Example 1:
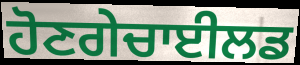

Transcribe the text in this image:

ਹੋਣਗੇਚਾਈਲਡ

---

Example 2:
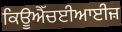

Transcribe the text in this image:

ਕਿਊਐੱਚਈਆਈਜ਼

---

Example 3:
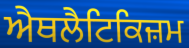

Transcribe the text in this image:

ਐਥਲੈਟਿਕਿਜ਼ਮ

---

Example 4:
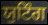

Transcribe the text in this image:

ਯੁਟਿੰਗ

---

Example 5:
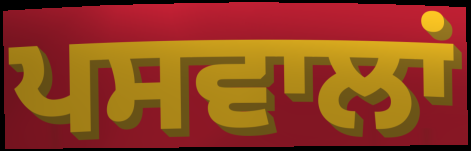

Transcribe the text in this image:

ਪਸਵਾਲਾਂ